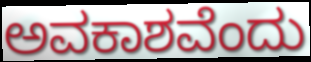
ಅವಕಾಶವೆಂದು